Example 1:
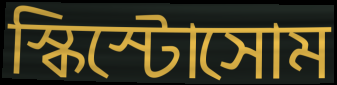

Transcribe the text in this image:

স্কিস্টোসোম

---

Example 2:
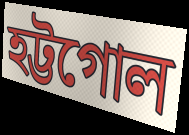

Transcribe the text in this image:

হট্টগোল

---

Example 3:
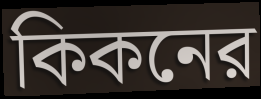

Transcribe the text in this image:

কিকনের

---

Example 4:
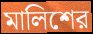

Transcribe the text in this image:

মালিশের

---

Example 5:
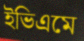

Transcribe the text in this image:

ইভিএমে